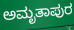
ಅಮೃತಾಪುರ